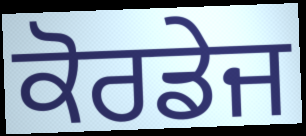
ਕੋਰਡੇਜ